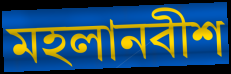
মহলানবীশ